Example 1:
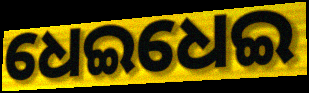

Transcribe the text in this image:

ଧେଇଧେଇ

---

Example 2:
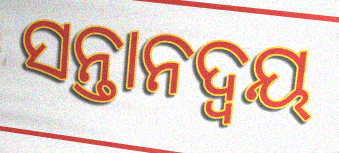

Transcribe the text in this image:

ସନ୍ତାନଦ୍ୱୟ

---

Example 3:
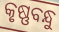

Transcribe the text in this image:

କୃଷ୍ଣବନ୍ଧୁ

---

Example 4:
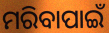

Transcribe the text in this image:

ମରିବାପାଇଁ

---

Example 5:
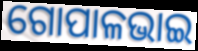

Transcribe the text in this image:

ଗୋପାଳଭାଇ